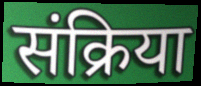
संक्रिया